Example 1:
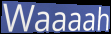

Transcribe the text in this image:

Waaaah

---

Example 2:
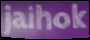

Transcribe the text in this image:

jaihok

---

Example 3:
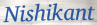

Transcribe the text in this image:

Nishikant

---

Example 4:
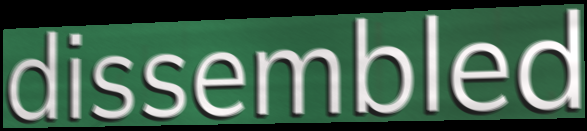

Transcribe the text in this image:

dissembled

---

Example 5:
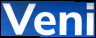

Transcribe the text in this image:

Veni